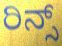
ರಿನ್ಸ್